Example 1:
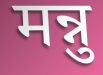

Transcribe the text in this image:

मन्नु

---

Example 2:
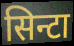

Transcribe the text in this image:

सिन्टा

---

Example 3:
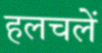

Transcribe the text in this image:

हलचलें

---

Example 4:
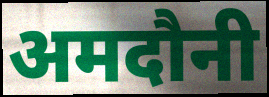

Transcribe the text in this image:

अमदौनी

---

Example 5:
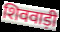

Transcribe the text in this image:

शिववाड़ी